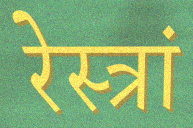
रेस्त्रां